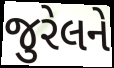
જુરેલને